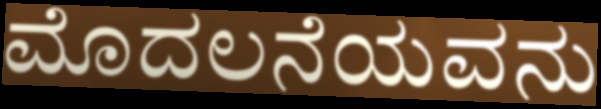
ಮೊದಲನೆಯವನು